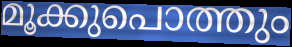
മൂക്കുപൊത്തും